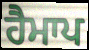
ਹੈਮਾਪ